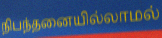
நிபந்தனையில்லாமல்